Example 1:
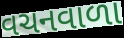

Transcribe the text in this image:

વચનવાળા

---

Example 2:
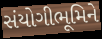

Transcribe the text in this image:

સંયોગીભૂમિને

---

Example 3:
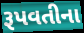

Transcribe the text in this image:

રૂપવતીના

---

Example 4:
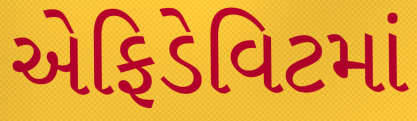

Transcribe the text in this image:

એફિડેવિટમાં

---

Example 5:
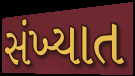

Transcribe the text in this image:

સંખ્યાત